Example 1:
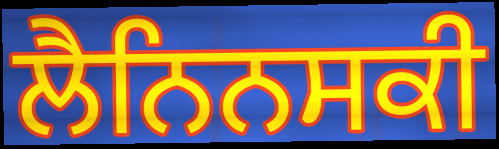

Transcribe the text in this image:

ਲੈਨਿਨਸਕੀ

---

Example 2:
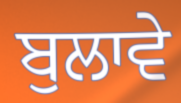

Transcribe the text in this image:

ਬੁਲਾਵੇ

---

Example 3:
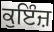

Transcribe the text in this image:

ਕੁਇੰਜ਼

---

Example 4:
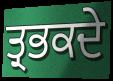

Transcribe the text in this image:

ਤ੍ਰਭਕਦੇ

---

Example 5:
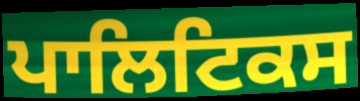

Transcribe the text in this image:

ਪਾਲਿਟਿਕਸ